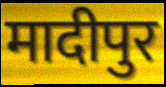
मादीपुर